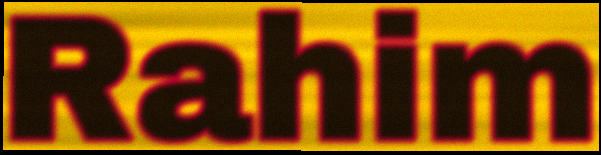
Rahim